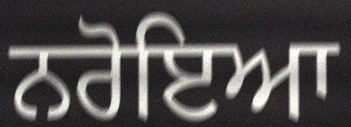
ਨਰੋਇਆ